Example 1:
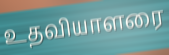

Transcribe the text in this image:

உதவியாளரை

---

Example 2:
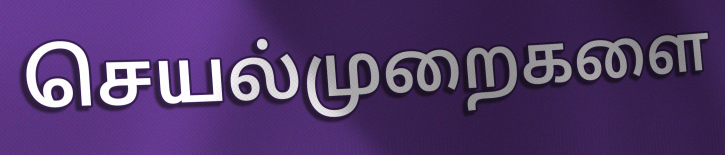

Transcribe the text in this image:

செயல்முறைகளை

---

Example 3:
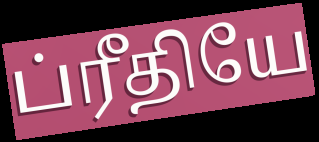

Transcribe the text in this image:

ப்ரீதியே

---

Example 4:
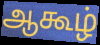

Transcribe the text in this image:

ஆகூழ்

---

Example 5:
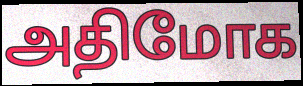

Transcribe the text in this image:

அதிமோக